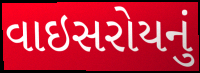
વાઇસરોયનું